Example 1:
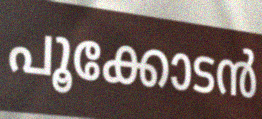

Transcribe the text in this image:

പൂക്കോടൻ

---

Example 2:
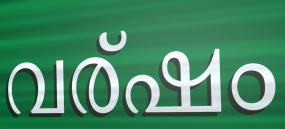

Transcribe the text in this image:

വര്ഷം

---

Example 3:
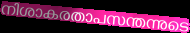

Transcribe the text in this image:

നിശാകരതാപസന്തന്നുടെ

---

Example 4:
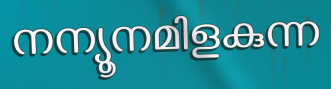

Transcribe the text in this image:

നന്യൂനമിളകുന്ന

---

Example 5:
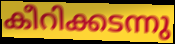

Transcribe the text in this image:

കീറിക്കടന്നു